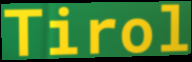
Tirol